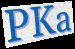
PKa